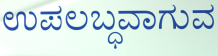
ಉಪಲಬ್ಧವಾಗುವ